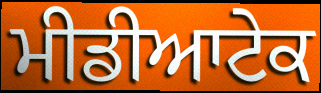
ਮੀਡੀਆਟੇਕ